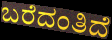
ಬರೆದಂತಿದೆ